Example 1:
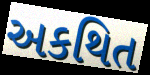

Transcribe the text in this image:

અકથિત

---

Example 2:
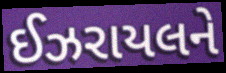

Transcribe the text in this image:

ઈઝરાયલને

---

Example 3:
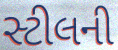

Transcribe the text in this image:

સ્ટીલની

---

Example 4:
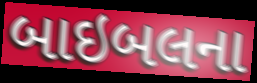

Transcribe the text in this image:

બાઇબલના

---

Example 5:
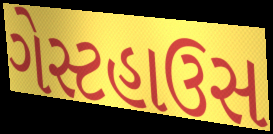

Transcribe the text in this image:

ગેસ્ટહાઉસ